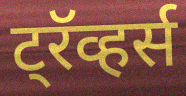
ट्रॅव्हर्स